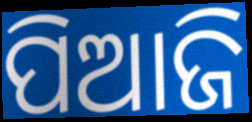
ପିଆଜି